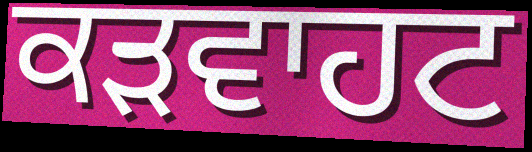
ਕੜਵਾਹਟ